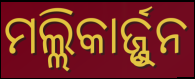
ମଲ୍ଲିକାର୍ଜ୍ଜୁନ